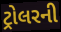
ટ્રોલરની